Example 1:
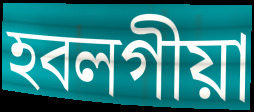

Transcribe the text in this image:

হবলগীয়া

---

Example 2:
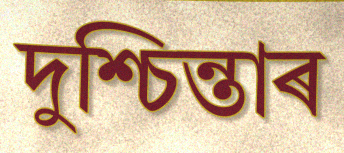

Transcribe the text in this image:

দুশ্চিন্তাৰ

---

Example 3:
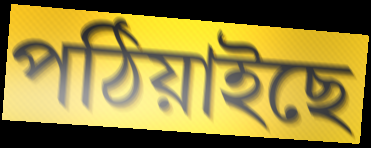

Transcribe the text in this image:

পঠিয়াইছে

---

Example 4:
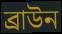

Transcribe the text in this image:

ব্ৰাউন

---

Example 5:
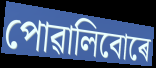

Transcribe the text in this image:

পোৱালিবোৰে